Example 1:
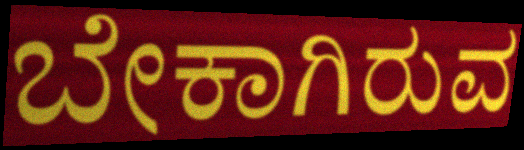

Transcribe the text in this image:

ಬೇಕಾಗಿರುವ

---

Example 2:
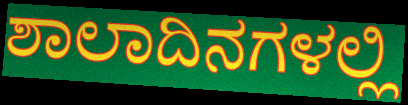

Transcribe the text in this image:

ಶಾಲಾದಿನಗಳಲ್ಲಿ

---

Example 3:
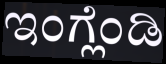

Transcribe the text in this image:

ಇಂಗ್ಲೆಂಡಿ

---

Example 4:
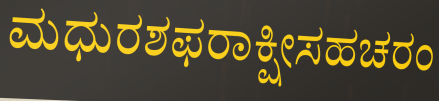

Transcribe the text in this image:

ಮಧುರಶಫರಾಕ್ಷೀಸಹಚರಂ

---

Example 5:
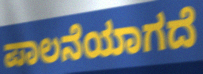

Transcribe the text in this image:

ಪಾಲನೆಯಾಗದೆ